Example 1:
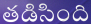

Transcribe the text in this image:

తడిసింది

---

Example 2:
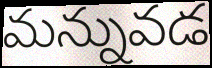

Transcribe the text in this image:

మన్నువడ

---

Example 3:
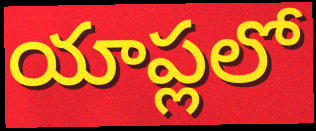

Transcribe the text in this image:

యాప్లలో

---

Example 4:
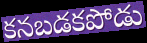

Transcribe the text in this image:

కనబడకపోడు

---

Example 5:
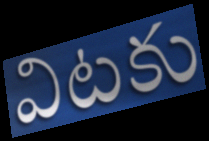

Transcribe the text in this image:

విటకు